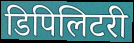
डिपिलिटरी